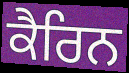
ਕੈਰਿਨ